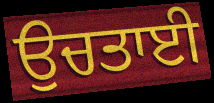
ਉਚਤਾਈ